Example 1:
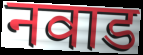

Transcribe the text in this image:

नवाड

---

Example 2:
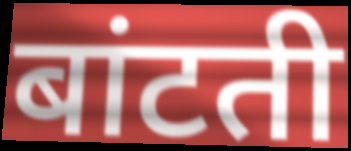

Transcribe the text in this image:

बांटती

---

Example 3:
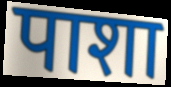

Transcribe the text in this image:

पाशा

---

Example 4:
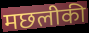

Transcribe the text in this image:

मछलीकी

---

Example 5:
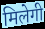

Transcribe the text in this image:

मिलेगी